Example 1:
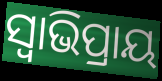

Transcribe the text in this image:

ସ୍ଵାଭିପ୍ରାୟ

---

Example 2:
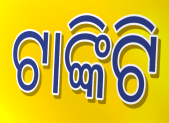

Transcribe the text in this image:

ଟାଙ୍କିଟି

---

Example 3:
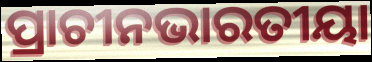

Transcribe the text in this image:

ପ୍ରାଚୀନଭାରତୀୟା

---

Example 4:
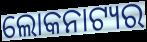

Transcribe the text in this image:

ଲୋକନାଟ୍ୟର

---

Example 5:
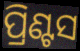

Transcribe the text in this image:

ପ୍ରିଣ୍ଟସ